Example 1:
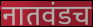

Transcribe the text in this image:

नातवंडच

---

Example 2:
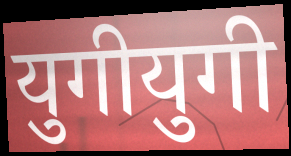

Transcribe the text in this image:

युगीयुगी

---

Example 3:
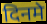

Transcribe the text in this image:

दिनमे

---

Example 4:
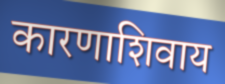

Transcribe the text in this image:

कारणाशिवाय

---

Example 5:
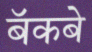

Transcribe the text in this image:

बॅकबे